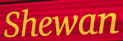
Shewan